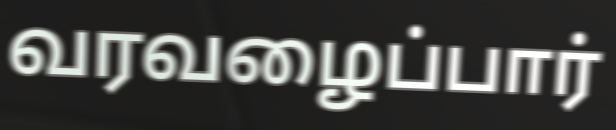
வரவழைப்பார்